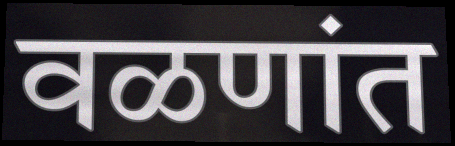
वळणांत